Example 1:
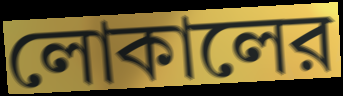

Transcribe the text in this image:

লোকালের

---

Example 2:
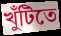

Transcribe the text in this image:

খুঁটিতে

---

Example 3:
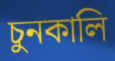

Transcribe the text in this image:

চুনকালি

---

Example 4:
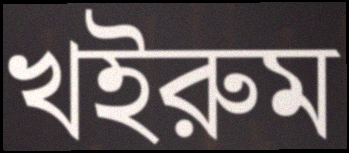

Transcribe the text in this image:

খইরুম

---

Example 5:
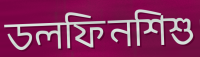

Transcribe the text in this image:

ডলফিনশিশু